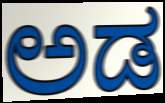
ಅಡ